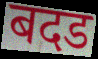
बदड